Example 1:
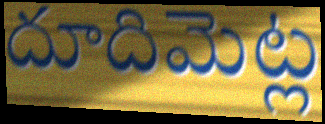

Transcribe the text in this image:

దూదిమెట్ల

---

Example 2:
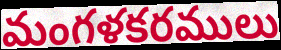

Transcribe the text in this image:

మంగళకరములు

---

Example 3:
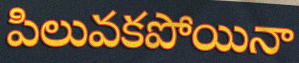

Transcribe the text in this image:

పిలువకపోయినా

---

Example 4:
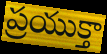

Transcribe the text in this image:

ప్రయుక్తా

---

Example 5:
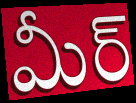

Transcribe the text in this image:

మీర్